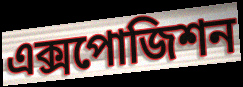
এক্সপোজিশন